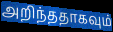
அறிந்ததாகவும்